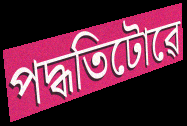
পদ্ধতিটোৱে